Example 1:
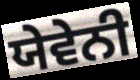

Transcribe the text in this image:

ਯੇਵੇਨੀ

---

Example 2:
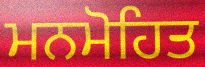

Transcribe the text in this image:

ਮਨਮੋਹਿਤ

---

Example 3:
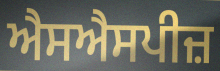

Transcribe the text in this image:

ਐਸਐਸਪੀਜ਼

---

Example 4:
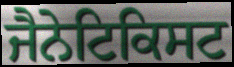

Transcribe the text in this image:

ਜੈਨੇਟਿਕਿਸਟ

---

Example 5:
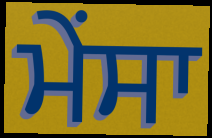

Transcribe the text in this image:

ਮੇਂਸਾ